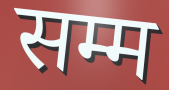
सम्म